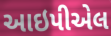
આઇપીએલ